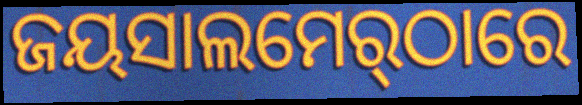
ଜୟସାଲମେର୍‌ଠାରେ